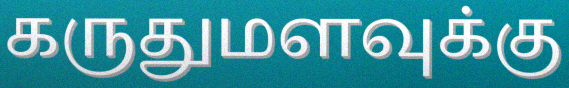
கருதுமளவுக்கு